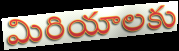
మిరియాలకు